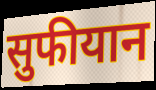
सुफीयान